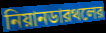
নিয়ানডারথলের